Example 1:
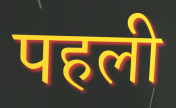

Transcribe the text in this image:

पहली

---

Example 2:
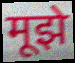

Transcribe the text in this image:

मूझे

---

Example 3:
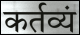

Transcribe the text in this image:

कर्तव्यं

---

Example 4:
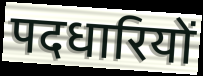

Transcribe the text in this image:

पदधारियों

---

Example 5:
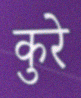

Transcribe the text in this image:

कुरे